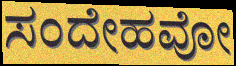
ಸಂದೇಹವೋ